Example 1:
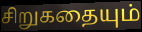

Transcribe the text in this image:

சிறுகதையும்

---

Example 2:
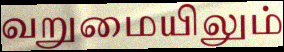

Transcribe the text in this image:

வறுமையிலும்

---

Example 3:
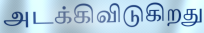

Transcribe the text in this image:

அடக்கிவிடுகிறது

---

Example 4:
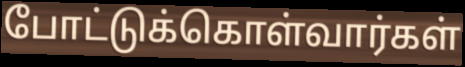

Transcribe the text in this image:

போட்டுக்கொள்வார்கள்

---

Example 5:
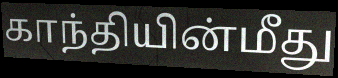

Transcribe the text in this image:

காந்தியின்மீது